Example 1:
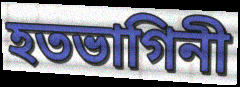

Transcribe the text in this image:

হতভাগিনী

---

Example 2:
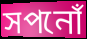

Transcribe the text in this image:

সপনোঁ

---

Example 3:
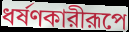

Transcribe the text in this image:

ধর্ষণকারীরূপে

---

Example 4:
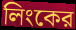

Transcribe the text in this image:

লিংকের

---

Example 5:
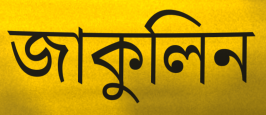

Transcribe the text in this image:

জাকুলিন